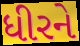
ધીરને